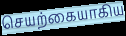
செயற்கையாகிய